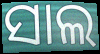
ସାଲ